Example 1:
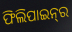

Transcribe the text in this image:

ଫିଲିପାଇନ୍‌ର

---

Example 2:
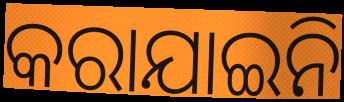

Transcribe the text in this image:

କରାଯାଇନି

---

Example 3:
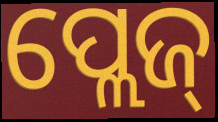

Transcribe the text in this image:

ପ୍ଲେଜ୍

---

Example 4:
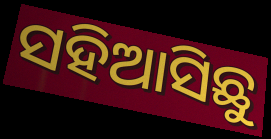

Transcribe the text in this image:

ସହିଆସିଛୁ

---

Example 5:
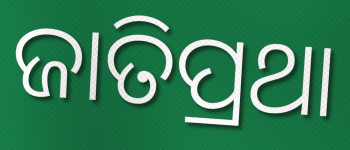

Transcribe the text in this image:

ଜାତିପ୍ରଥା